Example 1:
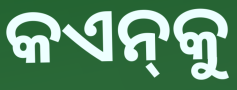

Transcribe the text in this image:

କଏନ୍‌କୁ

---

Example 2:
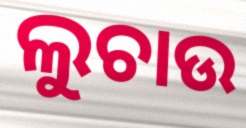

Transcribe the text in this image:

ଲୁଚାଉ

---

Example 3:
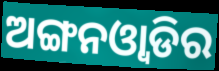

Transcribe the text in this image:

ଅଙ୍ଗନଓ୍ବାଡିର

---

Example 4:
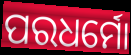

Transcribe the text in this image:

ପରଧର୍ମୋ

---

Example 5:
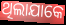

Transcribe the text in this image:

ଥିଲାଯାକେ